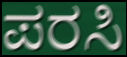
ಪರಸಿ